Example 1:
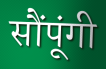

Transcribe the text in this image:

सौंपूंगी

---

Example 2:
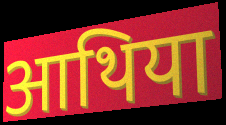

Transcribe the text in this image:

आथिया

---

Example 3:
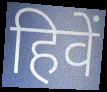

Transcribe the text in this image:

हिवें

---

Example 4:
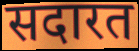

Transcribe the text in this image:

सदारत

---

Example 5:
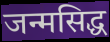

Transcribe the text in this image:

जन्‍मसिद्ध